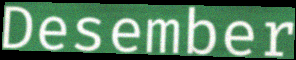
Desember